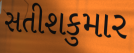
સતીશકુમાર